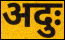
अदुः